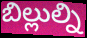
బిల్లుల్ని